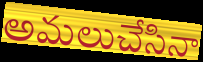
అమలుచేసినా